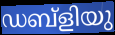
ഡബ്ളിയു